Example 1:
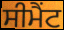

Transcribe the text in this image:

ਸੀਮੈੰਟ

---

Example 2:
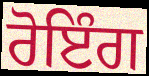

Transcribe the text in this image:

ਰੋਇੰਗ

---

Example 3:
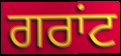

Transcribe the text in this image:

ਗਰਾਂਟ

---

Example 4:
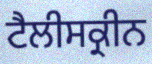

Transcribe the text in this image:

ਟੈਲੀਸਕ੍ਰੀਨ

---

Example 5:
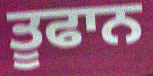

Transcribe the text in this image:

ਤੂਫਾਨ